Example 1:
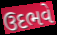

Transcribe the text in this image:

ઉદભવે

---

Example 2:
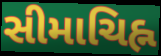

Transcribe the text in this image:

સીમાચિહ્ન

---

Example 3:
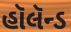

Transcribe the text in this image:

હૉલૅન્ડ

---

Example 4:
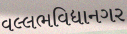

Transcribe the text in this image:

વલ્લભવિદ્યાનગર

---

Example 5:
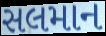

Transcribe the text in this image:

સલમાન